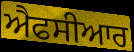
ਐਫਸੀਆਰ